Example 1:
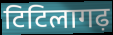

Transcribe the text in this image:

टिटिलागढ़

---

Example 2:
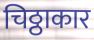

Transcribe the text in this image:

चिठ्ठाकार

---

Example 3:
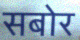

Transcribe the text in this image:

सबोर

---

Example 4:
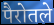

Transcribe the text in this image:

पैरोतले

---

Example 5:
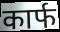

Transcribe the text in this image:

कार्फ